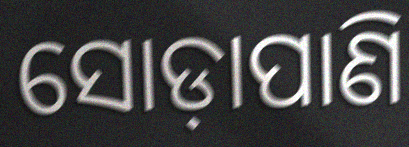
ସୋଡ଼ାପାଣି